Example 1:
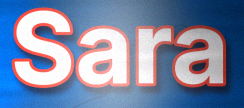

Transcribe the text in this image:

Sara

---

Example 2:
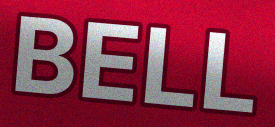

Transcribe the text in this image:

BELL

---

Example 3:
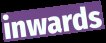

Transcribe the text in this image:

inwards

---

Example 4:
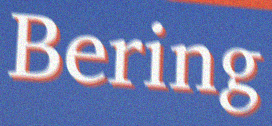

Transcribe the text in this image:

Bering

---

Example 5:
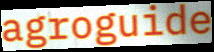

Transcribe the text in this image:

agroguide